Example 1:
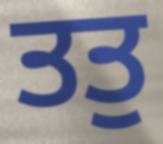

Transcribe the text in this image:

ਤਤੁ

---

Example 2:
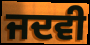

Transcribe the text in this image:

ਜਦਵੀ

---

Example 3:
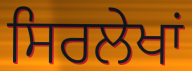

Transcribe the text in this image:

ਸਿਰਲੇਖਾਂ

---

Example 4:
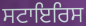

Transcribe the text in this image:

ਸਟਾਇਰਿਸ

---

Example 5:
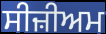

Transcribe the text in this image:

ਸੀਜ਼ੀਅਮ